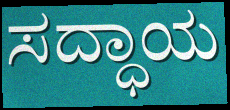
ಸದ್ಧಾಯ